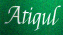
Atiqul